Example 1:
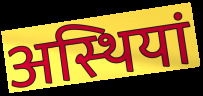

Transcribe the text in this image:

अस्थियां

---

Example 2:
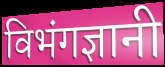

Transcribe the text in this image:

विभंगज्ञानी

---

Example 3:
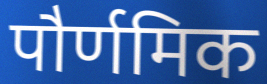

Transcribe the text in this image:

पौर्णमिक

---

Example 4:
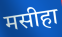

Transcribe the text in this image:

मसीहा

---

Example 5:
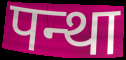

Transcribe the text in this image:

पन्‍था